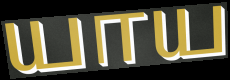
யாய